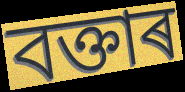
বক্তাৰ